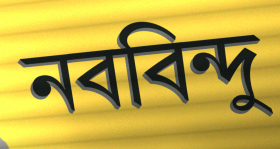
নববিন্দু